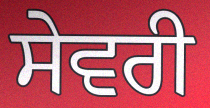
ਸੇਵਰੀ